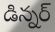
డిన్నర్